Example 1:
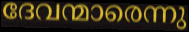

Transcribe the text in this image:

ദേവന്മാരെന്നു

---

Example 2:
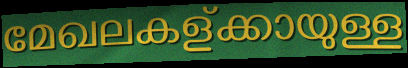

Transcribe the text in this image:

മേഖലകള്ക്കായുള്ള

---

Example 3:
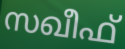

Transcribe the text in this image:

സഖീഫ്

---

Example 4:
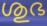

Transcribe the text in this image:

ശുഭ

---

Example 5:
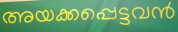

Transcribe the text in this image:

അയക്കപ്പെട്ടവൻ